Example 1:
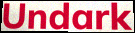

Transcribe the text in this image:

Undark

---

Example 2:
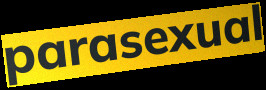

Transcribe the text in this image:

parasexual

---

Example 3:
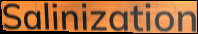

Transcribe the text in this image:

Salinization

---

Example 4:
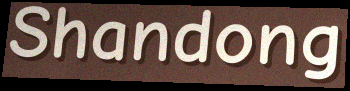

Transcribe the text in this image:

Shandong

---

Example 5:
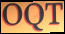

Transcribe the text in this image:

OQT